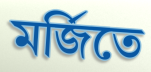
মর্জিতে